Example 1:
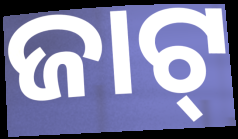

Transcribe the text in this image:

ଜାଟ୍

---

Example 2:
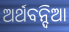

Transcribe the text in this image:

ଅର୍ଥବନ୍ଦିଆ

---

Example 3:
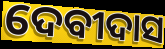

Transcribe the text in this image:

ଦେବୀଦାସ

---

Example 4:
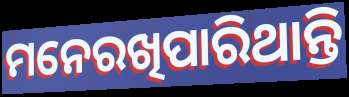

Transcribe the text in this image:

ମନେରଖିପାରିଥାନ୍ତି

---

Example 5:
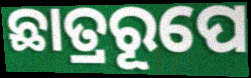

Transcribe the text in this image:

ଛାତ୍ରରୂପେ